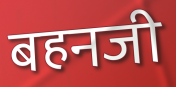
बहनजी